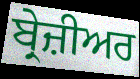
ਬ੍ਰੇਜ਼ੀਅਰ